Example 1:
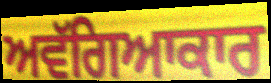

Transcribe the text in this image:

ਅਵੱਗਿਆਕਾਰ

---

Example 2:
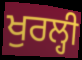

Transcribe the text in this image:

ਖੁਰਲ੍ਹੀ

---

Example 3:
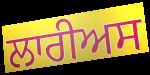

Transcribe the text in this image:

ਲਾਰੀਅਸ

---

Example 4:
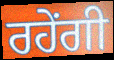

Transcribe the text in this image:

ਰਹੇਂਗੀ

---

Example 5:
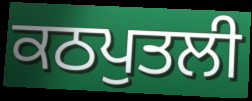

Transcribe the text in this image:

ਕਠਪੁਤਲੀ